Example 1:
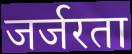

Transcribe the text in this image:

जर्जरता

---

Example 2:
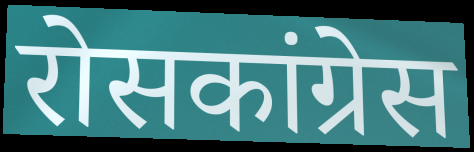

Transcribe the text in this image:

रोसकांग्रेस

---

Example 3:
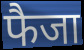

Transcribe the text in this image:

फैजा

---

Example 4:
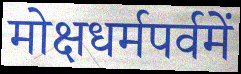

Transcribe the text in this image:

मोक्षधर्मपर्वमें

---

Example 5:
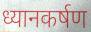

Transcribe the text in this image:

ध्यानकर्षण